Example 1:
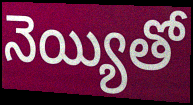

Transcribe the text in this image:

నెయ్యితో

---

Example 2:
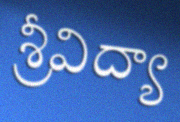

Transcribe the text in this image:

శ్రీవిద్యా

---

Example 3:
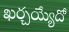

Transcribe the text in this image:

ఖర్చయ్యేదో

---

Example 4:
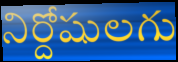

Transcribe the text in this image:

నిర్దోషులగు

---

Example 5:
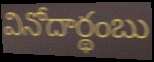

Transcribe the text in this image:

వినోదార్థంబు